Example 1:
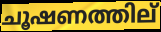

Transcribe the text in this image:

ചൂഷണത്തില്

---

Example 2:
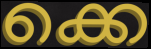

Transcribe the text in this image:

ക്കെ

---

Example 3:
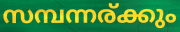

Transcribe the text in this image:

സമ്പന്നര്ക്കും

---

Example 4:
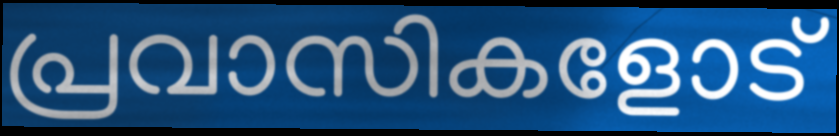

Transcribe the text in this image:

പ്രവാസികളോട്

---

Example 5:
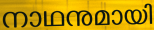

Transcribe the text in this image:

നാഥനുമായി